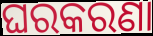
ଘରକରଣା